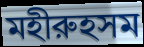
মহীরুহসম